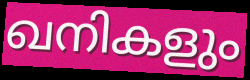
ഖനികളും